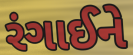
રંગાઈને